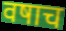
वषाच